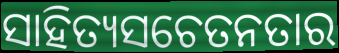
ସାହିତ୍ୟସଚେତନତାର